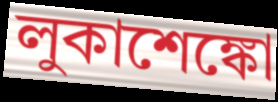
লুকাশেঙ্কো